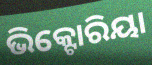
ଭିକ୍ଟୋରିୟା